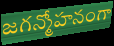
జగన్మోహనంగా